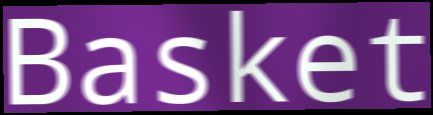
Basket